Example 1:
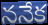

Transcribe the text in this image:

ననేక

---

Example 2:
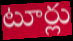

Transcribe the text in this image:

టూర్లు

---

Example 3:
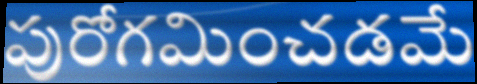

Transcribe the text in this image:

పురోగమించడమే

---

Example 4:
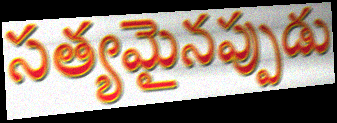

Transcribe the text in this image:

సత్యమైనప్పుడు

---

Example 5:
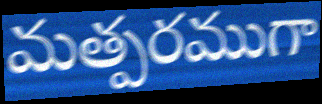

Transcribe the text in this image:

మత్పరముగా